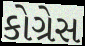
કોગ્રેસ